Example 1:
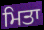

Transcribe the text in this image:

ਮਿਤਾ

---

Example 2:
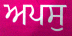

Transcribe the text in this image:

ਅਪਸੁ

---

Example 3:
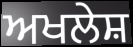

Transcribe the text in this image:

ਅਖਲੇਸ਼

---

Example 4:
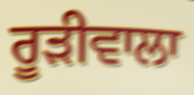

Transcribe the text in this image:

ਰੂਡ਼ੀਵਾਲਾ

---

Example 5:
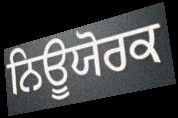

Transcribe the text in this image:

ਨਿਊਯੋਰਕ